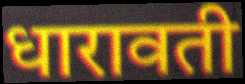
धारावती